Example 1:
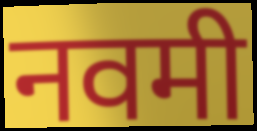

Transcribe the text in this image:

नवमी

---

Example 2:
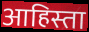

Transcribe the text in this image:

आहिस्‍ता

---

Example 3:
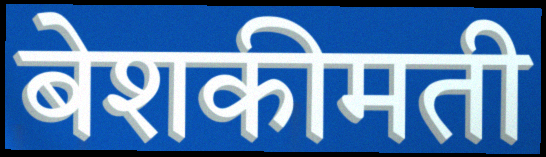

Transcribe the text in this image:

बेशकीमती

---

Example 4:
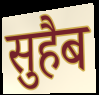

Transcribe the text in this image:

सुहैब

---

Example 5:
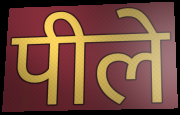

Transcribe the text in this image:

पीले